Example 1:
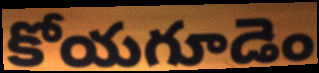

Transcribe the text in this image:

కోయగూడెం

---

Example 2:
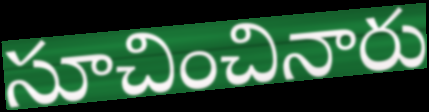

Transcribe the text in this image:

సూచించినారు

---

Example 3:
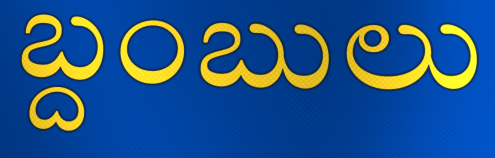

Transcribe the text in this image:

బ్దంబులు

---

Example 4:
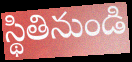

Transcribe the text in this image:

స్థితినుండి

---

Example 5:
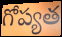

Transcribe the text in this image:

గోప్యత